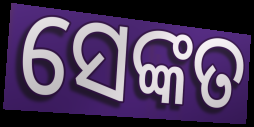
ସେଙ୍କତ